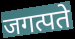
जगत्पते